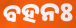
ବହନଃ